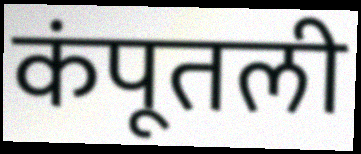
कंपूतली